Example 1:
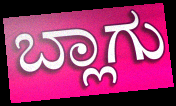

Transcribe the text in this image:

ಬ್ಲಾಗು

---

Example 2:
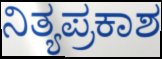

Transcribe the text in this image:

ನಿತ್ಯಪ್ರಕಾಶ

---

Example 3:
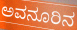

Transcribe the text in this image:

ಅವನೂರಿನ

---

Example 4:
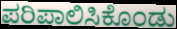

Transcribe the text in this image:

ಪರಿಪಾಲಿಸಿಕೊಂಡು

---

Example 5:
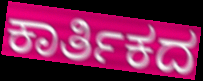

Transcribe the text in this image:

ಕಾರ್ತಿಕದ